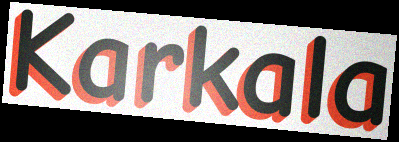
Karkala